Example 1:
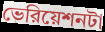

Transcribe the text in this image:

ভেরিয়েশনটা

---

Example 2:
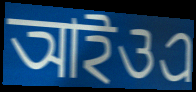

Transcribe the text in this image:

আইওএ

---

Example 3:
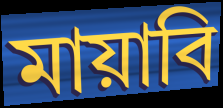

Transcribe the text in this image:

মায়াবি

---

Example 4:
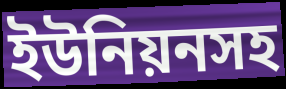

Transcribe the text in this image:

ইউনিয়নসহ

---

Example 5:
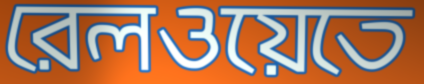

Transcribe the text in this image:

রেলওয়েতে